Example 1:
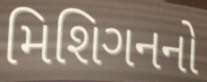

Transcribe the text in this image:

મિશિગનનો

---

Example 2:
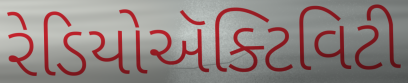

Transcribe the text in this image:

રેડિયોઍક્ટિવિટી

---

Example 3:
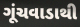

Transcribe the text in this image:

ગૂંચવાડાથી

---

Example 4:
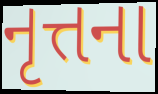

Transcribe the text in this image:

નૃત્તના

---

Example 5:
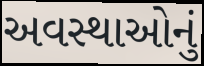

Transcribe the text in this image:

અવસ્થાઓનું